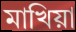
মাখিয়া